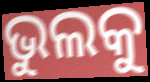
ଭୁଲକୁ